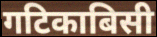
गटिकाबिसी